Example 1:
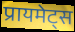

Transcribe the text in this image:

प्रायमेट्स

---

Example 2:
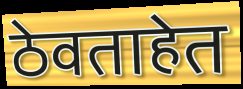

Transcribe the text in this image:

ठेवताहेत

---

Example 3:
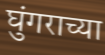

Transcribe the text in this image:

घुंगराच्या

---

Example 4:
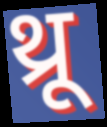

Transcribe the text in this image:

थ्रू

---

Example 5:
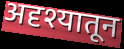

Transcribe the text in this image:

अदृश्यातून